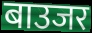
बाउजर